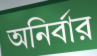
অনির্বার